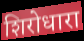
शिरोधारा